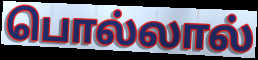
பொல்லால்